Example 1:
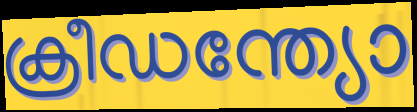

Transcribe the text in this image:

ക്രീഡന്ത്യോ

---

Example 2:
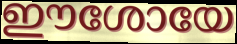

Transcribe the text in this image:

ഈശോയേ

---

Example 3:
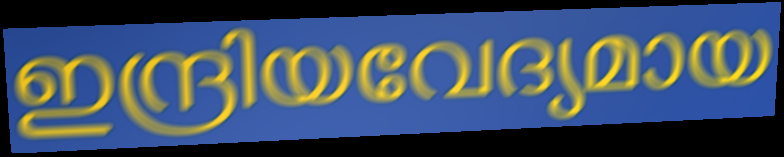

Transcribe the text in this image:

ഇന്ദ്രിയവേദ്യമായ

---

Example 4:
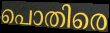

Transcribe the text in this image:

പൊതിരെ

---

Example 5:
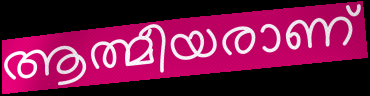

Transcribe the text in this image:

ആത്മീയരാണ്